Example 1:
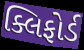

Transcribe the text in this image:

ક્લિફોર્ડ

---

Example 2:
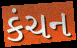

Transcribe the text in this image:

કંચન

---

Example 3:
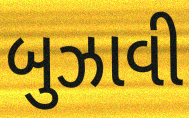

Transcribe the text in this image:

બુઝાવી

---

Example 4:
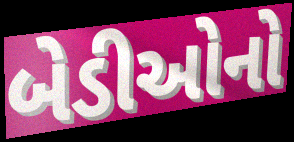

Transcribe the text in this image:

બેડીઓનો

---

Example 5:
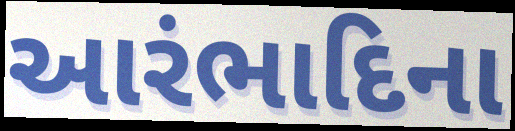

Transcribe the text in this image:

આરંભાદિના